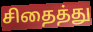
சிதைத்து